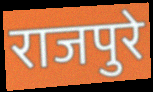
राजपुरे